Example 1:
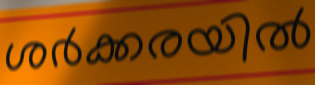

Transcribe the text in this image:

ശർക്കരയിൽ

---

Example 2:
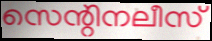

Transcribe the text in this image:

സെന്റിനലീസ്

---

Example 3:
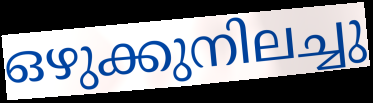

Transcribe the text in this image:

ഒഴുക്കുനിലച്ചു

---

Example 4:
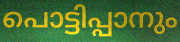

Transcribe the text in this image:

പൊട്ടിപ്പാനും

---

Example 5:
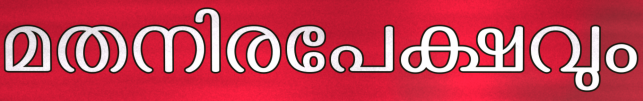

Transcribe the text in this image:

മതനിരപേക്ഷവും